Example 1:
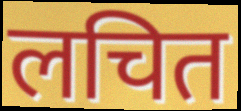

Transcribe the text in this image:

लचित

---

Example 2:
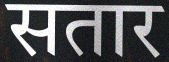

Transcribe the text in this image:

सतार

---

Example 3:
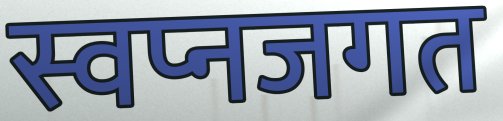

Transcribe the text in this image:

स्वप्नजगत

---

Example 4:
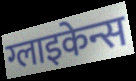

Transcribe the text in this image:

ग्लाइकेन्स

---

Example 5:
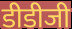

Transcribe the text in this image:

डीडीजी